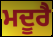
ਮਦੂਰੈ